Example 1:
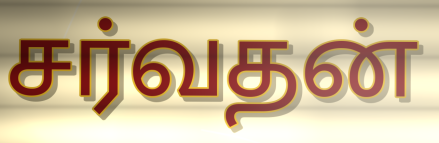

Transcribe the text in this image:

சர்வதன்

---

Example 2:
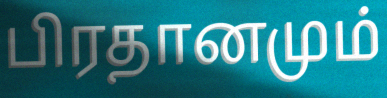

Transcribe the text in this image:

பிரதானமும்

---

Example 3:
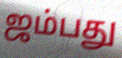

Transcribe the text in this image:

ஜம்பது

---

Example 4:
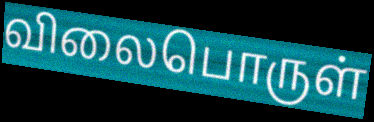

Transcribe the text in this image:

விலைபொருள்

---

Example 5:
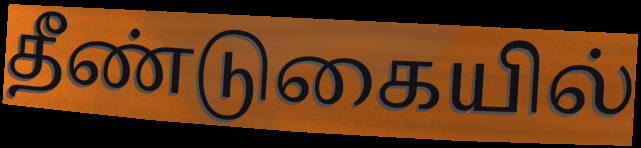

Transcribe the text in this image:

தீண்டுகையில்